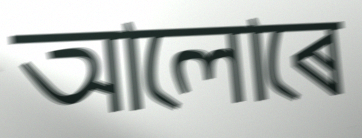
আলোৰে